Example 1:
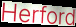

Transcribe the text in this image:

Herford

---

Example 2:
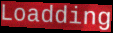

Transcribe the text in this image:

Loadding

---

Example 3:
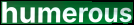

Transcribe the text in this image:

humerous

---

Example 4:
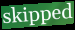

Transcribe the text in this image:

skipped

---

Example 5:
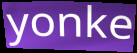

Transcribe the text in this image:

yonke